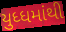
યુધ્ધમાંથી